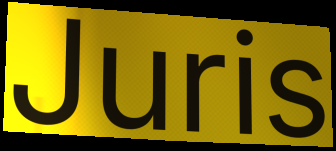
Juris